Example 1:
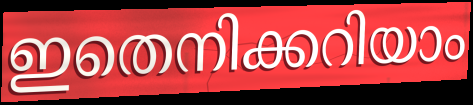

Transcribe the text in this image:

ഇതെനിക്കറിയാം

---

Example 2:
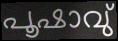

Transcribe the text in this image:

പൂഷാവു്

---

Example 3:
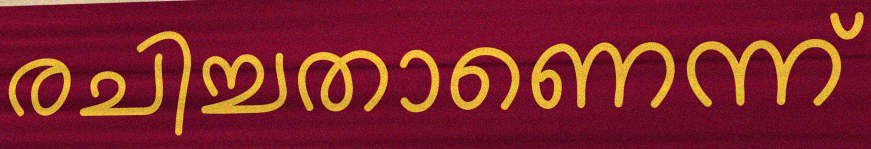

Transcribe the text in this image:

രചിച്ചതാണെന്ന്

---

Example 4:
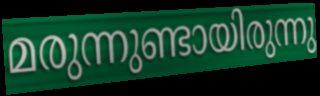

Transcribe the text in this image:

മരുന്നുണ്ടായിരുന്നു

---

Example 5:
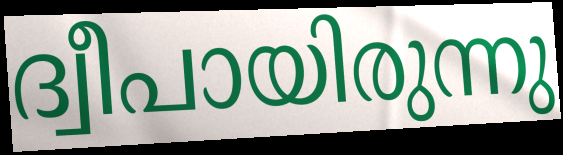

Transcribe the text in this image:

ദ്വീപായിരുന്നു